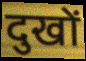
दुखों